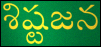
శిష్టజన